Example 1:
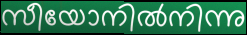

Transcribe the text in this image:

സീയോനിൽനിന്നു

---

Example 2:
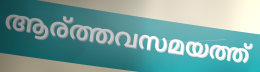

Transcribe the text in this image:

ആര്ത്തവസമയത്ത്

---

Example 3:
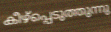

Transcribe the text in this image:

കീഴ്പ്പെടുത്തുന്നു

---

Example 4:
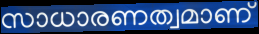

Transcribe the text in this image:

സാധാരണത്വമാണ്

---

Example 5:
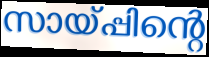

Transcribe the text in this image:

സായ്പ്പിന്റെ